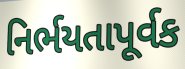
નિર્ભયતાપૂર્વક